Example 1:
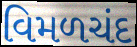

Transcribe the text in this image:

વિમળચંદ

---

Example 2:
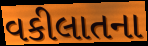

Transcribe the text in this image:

વકીલાતના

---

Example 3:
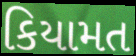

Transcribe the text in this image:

કિયામત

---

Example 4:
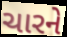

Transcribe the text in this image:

ચારને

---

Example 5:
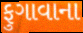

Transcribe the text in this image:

ફુગાવાના